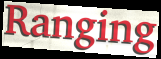
Ranging